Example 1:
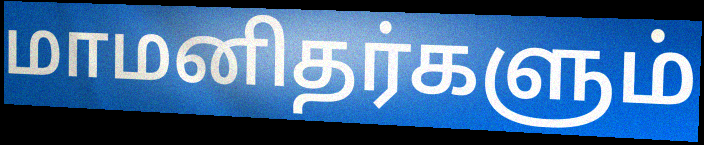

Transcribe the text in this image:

மாமனிதர்களும்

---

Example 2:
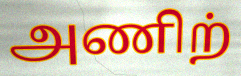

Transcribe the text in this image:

அணிற்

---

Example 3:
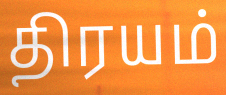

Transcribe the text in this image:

திரயம்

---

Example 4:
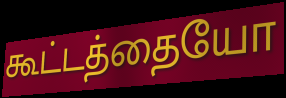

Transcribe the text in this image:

கூட்டத்தையோ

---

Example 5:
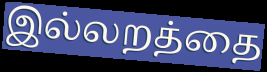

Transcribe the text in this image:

இல்லறத்தை